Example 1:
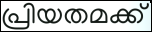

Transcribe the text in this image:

പ്രിയതമക്ക്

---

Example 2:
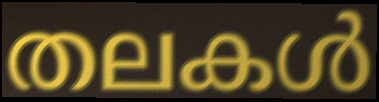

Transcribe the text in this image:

തലകൾ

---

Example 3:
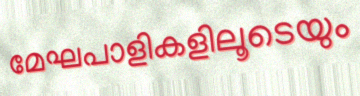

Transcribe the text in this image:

മേഘപാളികളിലൂടെയും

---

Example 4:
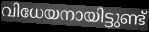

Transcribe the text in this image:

വിധേയനായിട്ടുണ്ട്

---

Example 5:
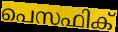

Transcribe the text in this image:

പെസഫിക്